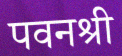
पवनश्री